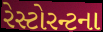
રેસ્ટોરન્ટના